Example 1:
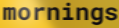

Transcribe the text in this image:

mornings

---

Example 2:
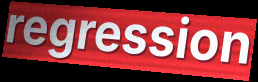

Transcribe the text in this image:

regression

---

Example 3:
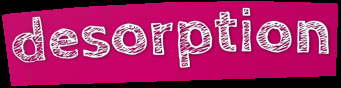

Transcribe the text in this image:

desorption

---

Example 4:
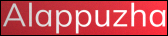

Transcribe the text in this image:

Alappuzha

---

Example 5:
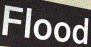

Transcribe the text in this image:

Flood